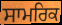
ਸਾਮਰਿਕ